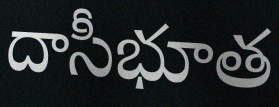
దాసీభూత